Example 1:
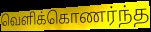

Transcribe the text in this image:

வெளிக்கொணர்ந்த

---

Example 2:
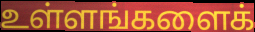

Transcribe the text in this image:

உள்ளங்களைக்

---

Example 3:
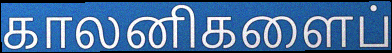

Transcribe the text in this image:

காலனிகளைப்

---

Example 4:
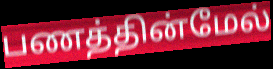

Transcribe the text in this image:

பணத்தின்மேல்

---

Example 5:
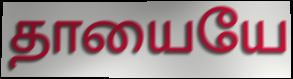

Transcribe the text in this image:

தாயையே